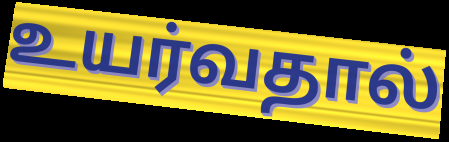
உயர்வதால்